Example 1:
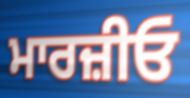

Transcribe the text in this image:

ਮਾਰਜ਼ੀਓ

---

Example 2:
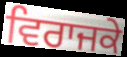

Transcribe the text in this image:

ਵਿਰਾਜਕੇ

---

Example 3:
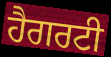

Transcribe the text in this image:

ਹੈਗਰਟੀ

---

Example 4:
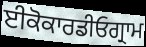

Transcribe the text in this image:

ਈਕੋਕਾਰਡੀਓਗ੍ਰਾਮ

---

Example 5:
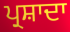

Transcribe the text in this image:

ਪ੍ਰਸ਼ਾਦਾ